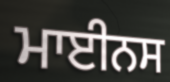
ਮਾਈਨਸ